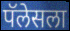
पॅलेसला